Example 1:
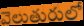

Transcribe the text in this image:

వెలుతురులో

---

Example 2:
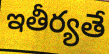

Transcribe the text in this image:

ఇతీర్యతే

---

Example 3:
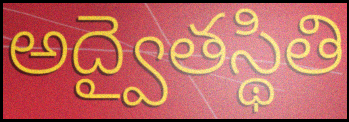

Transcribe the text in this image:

అద్వైతస్థితి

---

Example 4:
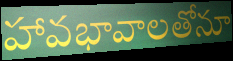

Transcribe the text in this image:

హావభావాలతోనూ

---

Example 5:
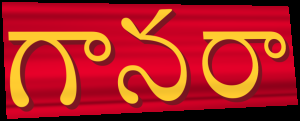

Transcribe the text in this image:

గానరా